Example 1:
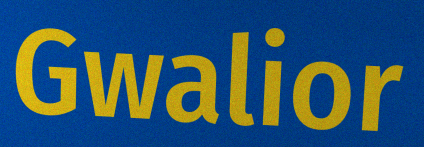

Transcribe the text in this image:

Gwalior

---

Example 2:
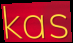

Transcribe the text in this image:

kas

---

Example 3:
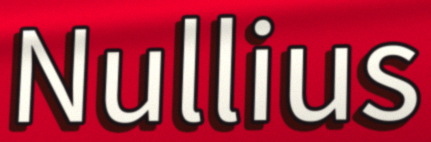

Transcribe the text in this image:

Nullius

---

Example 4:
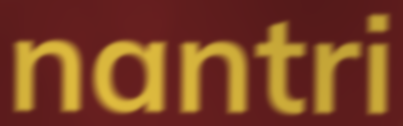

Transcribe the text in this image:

nantri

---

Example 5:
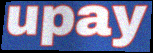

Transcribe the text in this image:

upay